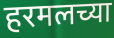
हरमलच्या